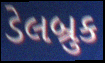
ડેલબ્રુક